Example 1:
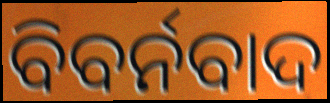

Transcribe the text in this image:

ବିବର୍ନବାଦ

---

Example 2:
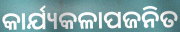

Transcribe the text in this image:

କାର୍ଯ୍ୟକଳାପଜନିତ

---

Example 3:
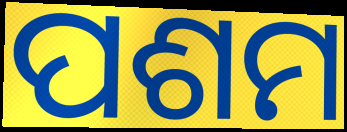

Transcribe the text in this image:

ପଶମ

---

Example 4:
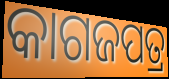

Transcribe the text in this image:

କାଗଜପତ୍ର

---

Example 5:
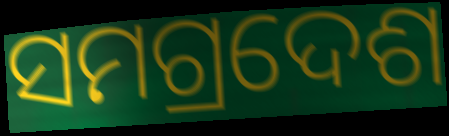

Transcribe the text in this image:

ସମଗ୍ରଦେଶ